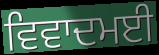
ਵਿਵਾਦਮਈ